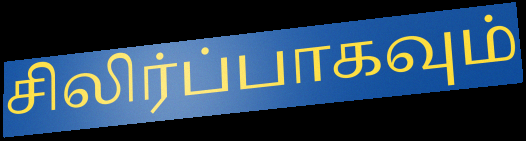
சிலிர்ப்பாகவும்